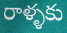
రాళ్ళకు